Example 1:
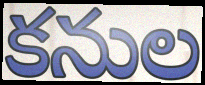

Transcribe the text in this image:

కనుల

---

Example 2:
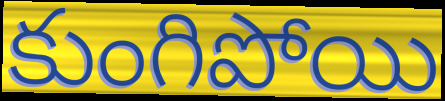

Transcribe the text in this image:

కుంగిపోయి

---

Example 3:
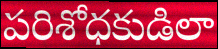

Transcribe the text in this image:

పరిశోధకుడిలా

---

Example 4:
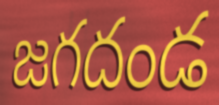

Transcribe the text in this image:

జగదండ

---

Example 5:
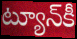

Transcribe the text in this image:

ట్యూన్‌కీ